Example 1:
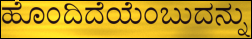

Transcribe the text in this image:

ಹೊಂದಿದೆಯೆಂಬುದನ್ನು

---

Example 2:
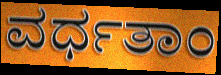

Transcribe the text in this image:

ವರ್ಧತಾಂ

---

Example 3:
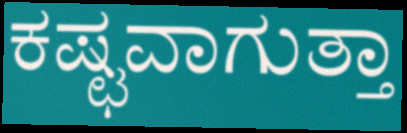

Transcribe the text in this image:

ಕಷ್ಟವಾಗುತ್ತಾ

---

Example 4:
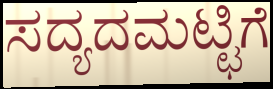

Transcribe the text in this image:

ಸದ್ಯದಮಟ್ಟಿಗೆ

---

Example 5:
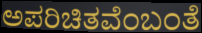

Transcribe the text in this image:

ಅಪರಿಚಿತವೆಂಬಂತೆ